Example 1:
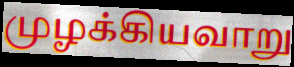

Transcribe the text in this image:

முழக்கியவாறு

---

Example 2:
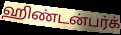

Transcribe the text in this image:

ஹிண்டன்பர்க்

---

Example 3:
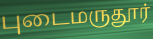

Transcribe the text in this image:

புடைமருதூர்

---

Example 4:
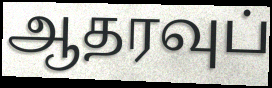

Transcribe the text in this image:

ஆதரவுப்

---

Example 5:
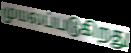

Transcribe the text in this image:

முயலப்படுகிறது